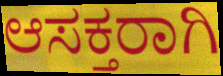
ಆಸಕ್ತರಾಗಿ